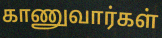
காணுவார்கள்